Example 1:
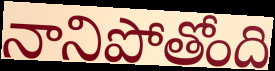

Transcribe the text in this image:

నానిపోతోంది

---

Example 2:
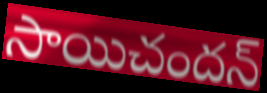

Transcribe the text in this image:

సాయిచందన్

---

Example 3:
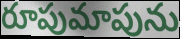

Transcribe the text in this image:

రూపుమాపును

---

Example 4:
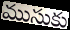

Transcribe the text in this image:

ముసుకు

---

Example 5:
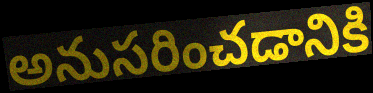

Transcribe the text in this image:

అనుసరించడానికి